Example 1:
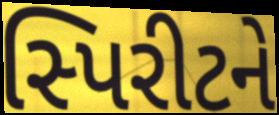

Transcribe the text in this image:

સ્પિરીટને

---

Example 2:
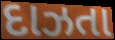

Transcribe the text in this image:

દાઝતા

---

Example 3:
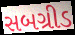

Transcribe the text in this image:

સબગ્રીડ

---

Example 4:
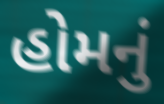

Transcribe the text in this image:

હોમનું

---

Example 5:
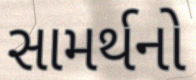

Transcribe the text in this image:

સામર્થનો